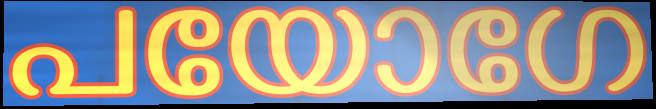
പയോഗേ